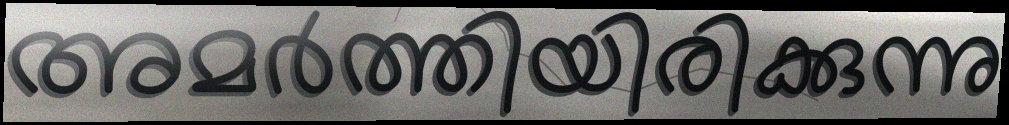
അമർത്തിയിരിക്കുന്നു